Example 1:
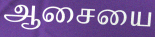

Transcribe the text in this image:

ஆசையை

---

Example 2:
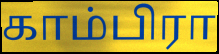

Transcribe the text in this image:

காம்பிரா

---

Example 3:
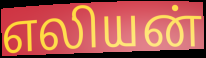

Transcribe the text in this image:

எலியன்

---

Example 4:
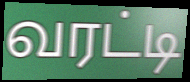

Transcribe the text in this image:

வரட்டி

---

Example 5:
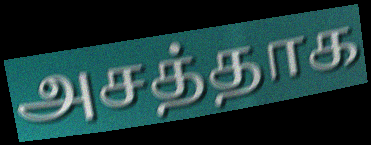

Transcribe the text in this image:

அசத்தாக